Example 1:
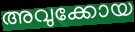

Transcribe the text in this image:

അവുക്കോയ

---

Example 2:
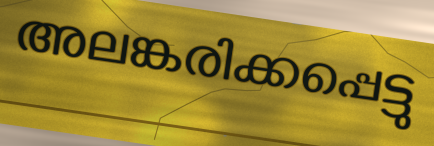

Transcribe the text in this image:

അലങ്കരിക്കപ്പെട്ടു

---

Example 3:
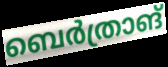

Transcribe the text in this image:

ബെർത്രാങ്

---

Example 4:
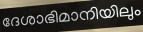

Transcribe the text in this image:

ദേശാഭിമാനിയിലും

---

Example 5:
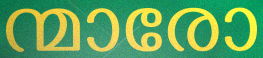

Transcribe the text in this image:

ന്മാരോ